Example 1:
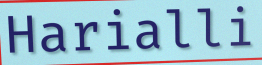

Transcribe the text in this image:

Harialli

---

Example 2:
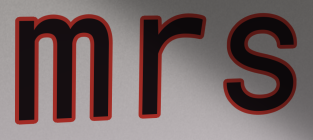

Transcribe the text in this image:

mrs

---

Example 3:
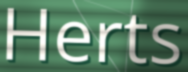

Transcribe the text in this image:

Herts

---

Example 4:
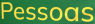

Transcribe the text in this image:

Pessoas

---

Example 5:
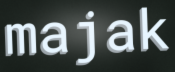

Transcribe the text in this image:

majak